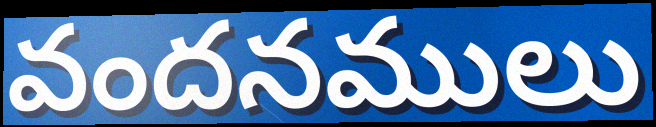
వందనములు